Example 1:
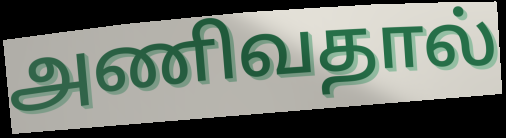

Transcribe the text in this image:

அணிவதால்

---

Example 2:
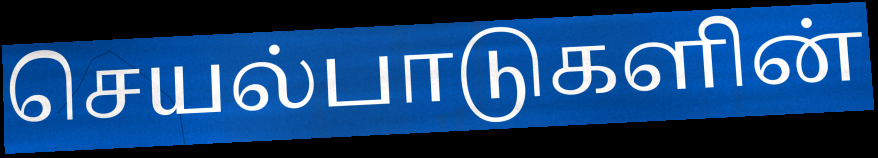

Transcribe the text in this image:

செயல்பாடுகளின்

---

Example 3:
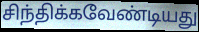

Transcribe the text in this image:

சிந்திக்கவேண்டியது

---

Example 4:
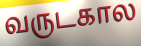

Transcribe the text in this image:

வருடகால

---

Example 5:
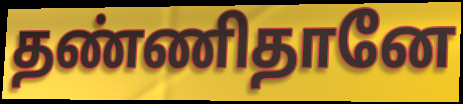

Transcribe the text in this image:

தண்ணிதானே